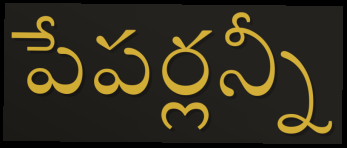
పేపర్లన్నీ